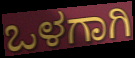
ಒಳಗಾಗಿ